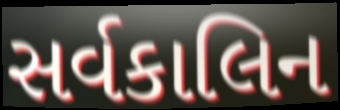
સર્વકાલિન